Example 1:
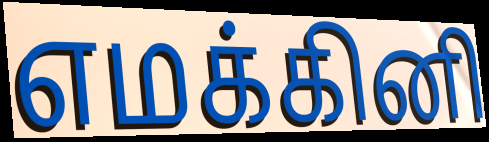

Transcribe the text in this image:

எமக்கினி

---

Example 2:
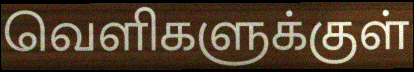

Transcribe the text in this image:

வெளிகளுக்குள்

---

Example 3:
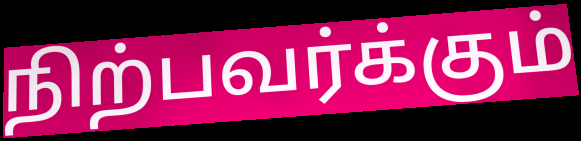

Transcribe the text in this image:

நிற்பவர்க்கும்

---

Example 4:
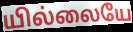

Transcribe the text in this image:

யில்லையே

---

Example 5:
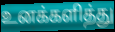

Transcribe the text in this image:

உனக்களித்து